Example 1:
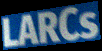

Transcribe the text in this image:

LARCs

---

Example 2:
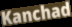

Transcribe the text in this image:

Kanchad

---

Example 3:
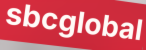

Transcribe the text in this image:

sbcglobal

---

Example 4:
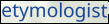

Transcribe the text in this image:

etymologist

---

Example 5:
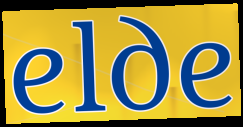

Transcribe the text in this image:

elde